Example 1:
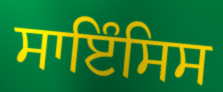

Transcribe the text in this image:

ਸਾਇੰਸਿਸ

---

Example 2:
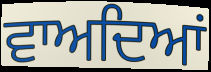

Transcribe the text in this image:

ਵਾਅਦਿਆਂ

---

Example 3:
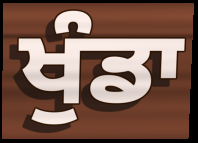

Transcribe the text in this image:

ਖੁੰਡਾ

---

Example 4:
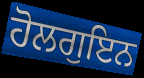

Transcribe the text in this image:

ਹੋਲਗੁਇਨ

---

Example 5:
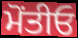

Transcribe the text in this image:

ਮੋਂਤੀਓ